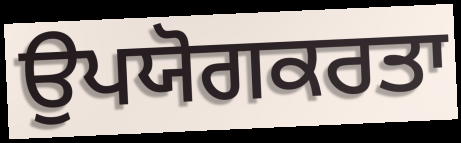
ਉਪਯੋਗਕਰਤਾ